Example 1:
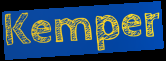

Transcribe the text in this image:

Kemper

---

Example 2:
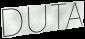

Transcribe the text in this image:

DUTA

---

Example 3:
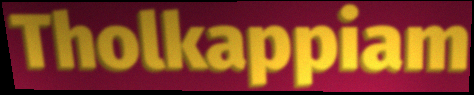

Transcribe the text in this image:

Tholkappiam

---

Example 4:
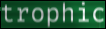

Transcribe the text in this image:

trophic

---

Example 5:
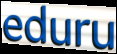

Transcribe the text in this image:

eduru